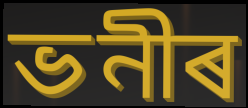
ভনীৰ